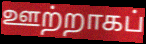
ஊற்றாகப்